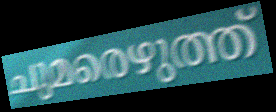
ചുമരെഴുത്ത്